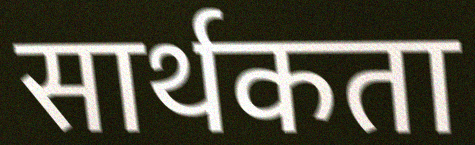
सार्थकता